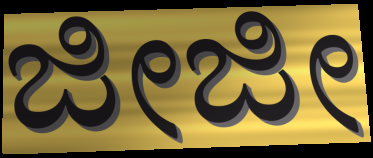
ಜೀಜೀ